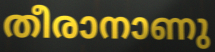
തീരാനാണു